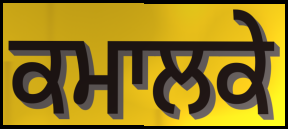
ਕਮਾਲਕੇ